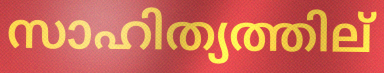
സാഹിത്യത്തില്